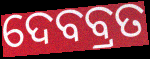
ଦେବବ୍ରତ